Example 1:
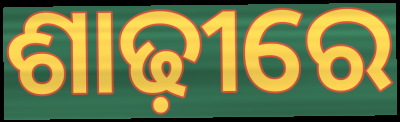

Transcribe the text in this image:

ଶାଢ଼ୀରେ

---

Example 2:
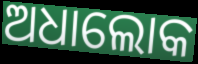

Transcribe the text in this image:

ଅଧାଲୋକ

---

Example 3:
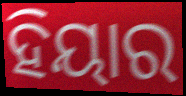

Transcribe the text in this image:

ହିୟାର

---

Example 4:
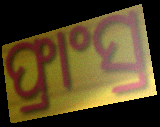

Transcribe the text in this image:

ଫ୍ରାଂସ୍ର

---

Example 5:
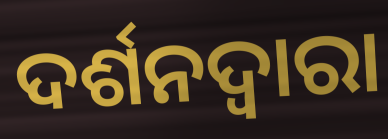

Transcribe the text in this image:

ଦର୍ଶନଦ୍ୱାରା